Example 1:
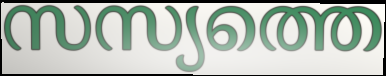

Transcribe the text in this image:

സസ്യത്തെ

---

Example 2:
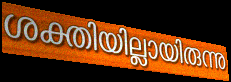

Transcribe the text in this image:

ശക്തിയില്ലായിരുന്നു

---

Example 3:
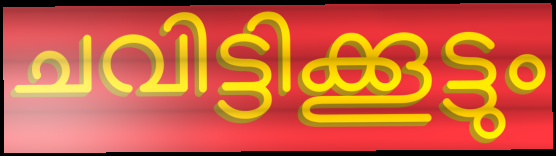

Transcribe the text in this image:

ചവിട്ടിക്കൂട്ടും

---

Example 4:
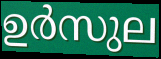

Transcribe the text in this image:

ഉർസുല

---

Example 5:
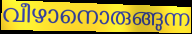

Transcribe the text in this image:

വീഴാനൊരുങ്ങുന്ന